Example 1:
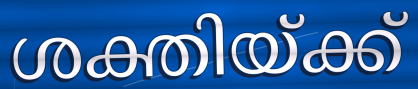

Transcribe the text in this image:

ശക്തിയ്ക്ക്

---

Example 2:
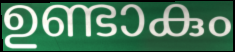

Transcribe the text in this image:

ഉണ്ടാകും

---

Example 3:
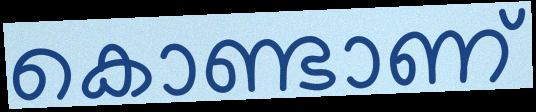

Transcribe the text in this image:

കൊണ്ടാണ്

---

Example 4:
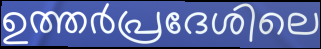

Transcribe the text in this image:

ഉത്തർപ്രദേശിലെ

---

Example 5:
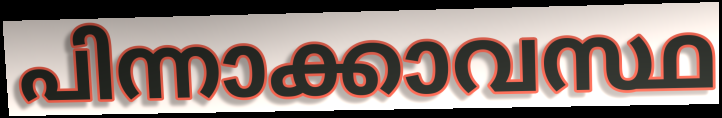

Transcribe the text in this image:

പിന്നാക്കാവസ്ഥ